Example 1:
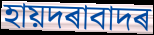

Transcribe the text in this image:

হায়দৰাবাদৰ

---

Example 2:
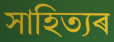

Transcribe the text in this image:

সাহিত্যৰ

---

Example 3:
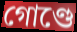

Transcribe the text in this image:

গোণ্ডে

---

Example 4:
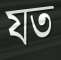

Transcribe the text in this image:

যত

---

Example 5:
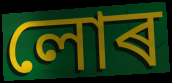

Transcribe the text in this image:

লোৰ